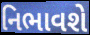
નિભાવશે